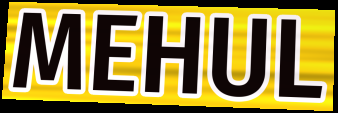
MEHUL